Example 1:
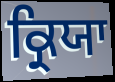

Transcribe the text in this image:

ਕ੍ਰਿਯਾ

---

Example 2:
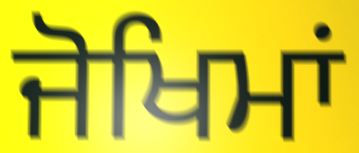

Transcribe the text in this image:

ਜੋਖਿਮਾਂ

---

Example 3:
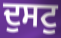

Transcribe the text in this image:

ਦੁਸਟੁ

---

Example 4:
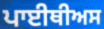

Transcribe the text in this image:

ਪਾਈਥੀਅਸ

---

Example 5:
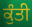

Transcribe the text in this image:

ਕੁੰਤੀ